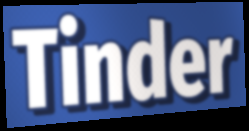
Tinder